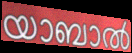
യാബാൽ